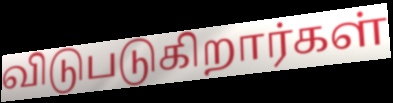
விடுபடுகிறார்கள்